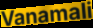
Vanamali